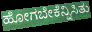
ಹೋಗಬೇಕೆನ್ನಿಸಿತು